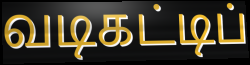
வடிகட்டிப்